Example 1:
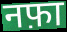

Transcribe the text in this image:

नफ़ा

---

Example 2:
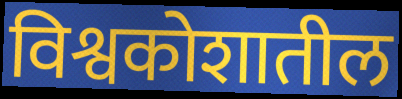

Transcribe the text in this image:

विश्वकोशातील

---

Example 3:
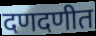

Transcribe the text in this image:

दणदणीत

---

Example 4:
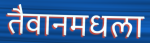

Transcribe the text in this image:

तैवानमधला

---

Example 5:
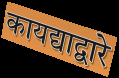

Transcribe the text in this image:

कायद्याद्वारे